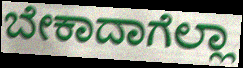
ಬೇಕಾದಾಗೆಲ್ಲಾ